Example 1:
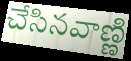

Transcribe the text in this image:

చేసినవాణ్ణి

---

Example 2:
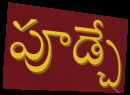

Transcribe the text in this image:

పూడ్చే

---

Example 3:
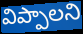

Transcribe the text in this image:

విప్పాలని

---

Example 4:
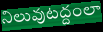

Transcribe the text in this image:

నిలువుటద్దంలా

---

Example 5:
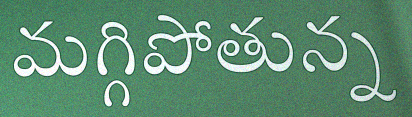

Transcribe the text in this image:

మగ్గిపోతున్న